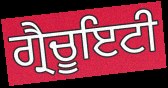
ਗ੍ਰੈਚੂਇਟੀ